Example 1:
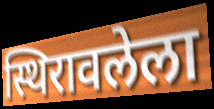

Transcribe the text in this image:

स्थिरावलेला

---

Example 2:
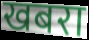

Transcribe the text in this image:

खबरा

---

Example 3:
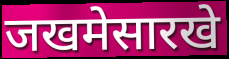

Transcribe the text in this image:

जखमेसारखे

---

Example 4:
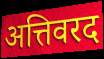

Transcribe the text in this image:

अत्तिवरद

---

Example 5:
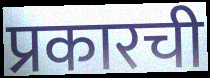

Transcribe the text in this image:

प्रकारची